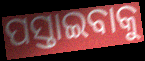
ପସ୍ତାଇବାକୁ